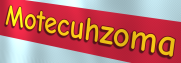
Motecuhzoma